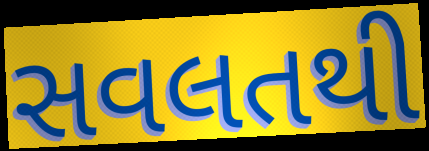
સવલતથી